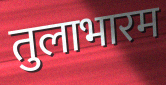
तुलाभारम